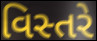
વિસ્તરે